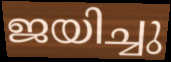
ജയിച്ചു